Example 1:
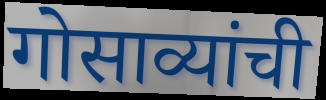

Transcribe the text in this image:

गोसाव्यांची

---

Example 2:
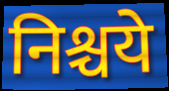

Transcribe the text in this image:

निश्चये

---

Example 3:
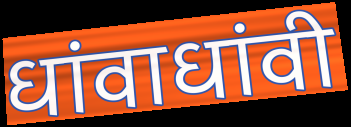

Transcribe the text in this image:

धांवाधांवी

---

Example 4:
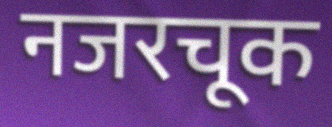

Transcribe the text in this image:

नजरचूक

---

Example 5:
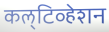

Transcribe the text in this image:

कल्टिव्हेशन